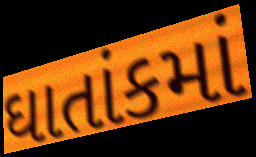
ઘાતાંકમાં